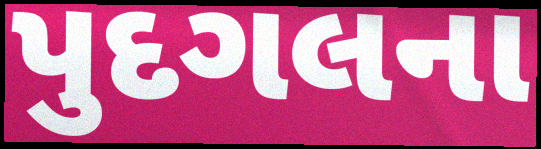
પુદગલના